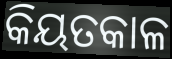
କିୟତକାଳ